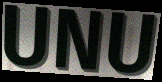
UNU